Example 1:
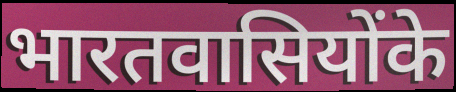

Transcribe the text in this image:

भारतवासियोंके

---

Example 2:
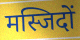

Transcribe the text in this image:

मस्जिदों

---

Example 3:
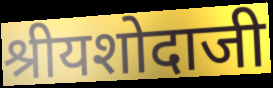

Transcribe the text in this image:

श्रीयशोदाजी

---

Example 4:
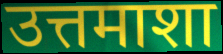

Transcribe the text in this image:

उत्तमाशा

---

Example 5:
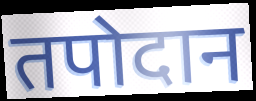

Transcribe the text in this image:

तपोदान